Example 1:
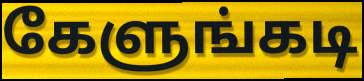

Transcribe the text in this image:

கேளுங்கடி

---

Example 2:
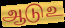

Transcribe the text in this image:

ஆடுஉ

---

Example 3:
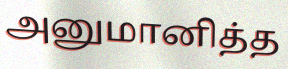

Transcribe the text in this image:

அனுமானித்த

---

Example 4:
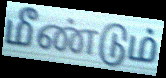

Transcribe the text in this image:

மீண்டும்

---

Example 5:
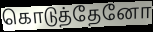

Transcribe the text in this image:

கொடுத்தேனோ